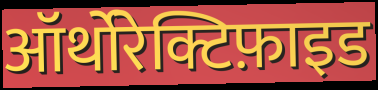
ऑर्थोरेक्टिफ़ाइड